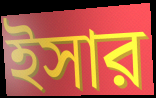
ইসার